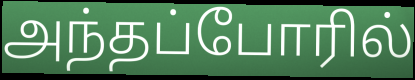
அந்தப்போரில்